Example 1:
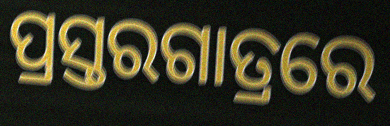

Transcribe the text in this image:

ପ୍ରସ୍ତରଗାତ୍ରରେ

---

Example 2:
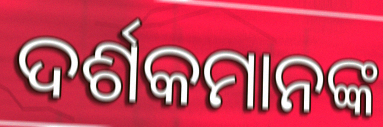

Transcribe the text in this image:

ଦର୍ଶକମାନଙ୍କ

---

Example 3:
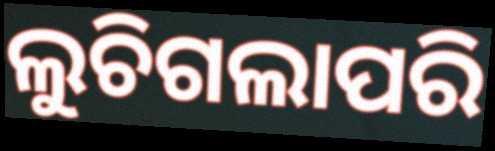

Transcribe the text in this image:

ଲୁଚିଗଲାପରି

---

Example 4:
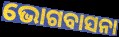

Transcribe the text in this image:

ଭୋଗବାସନା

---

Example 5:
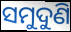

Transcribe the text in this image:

ସମୁଦୁଣି